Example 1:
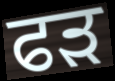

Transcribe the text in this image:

ਫੜ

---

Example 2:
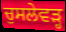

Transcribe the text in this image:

ਚੁਸਲੇਵੜ੍ਹ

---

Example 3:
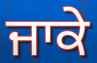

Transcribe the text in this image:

ਜਾਕੇ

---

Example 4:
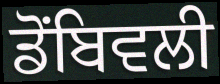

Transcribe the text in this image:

ਡੋਂਬਿਵਲੀ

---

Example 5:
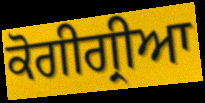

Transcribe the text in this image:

ਕੋਗੀਗ੍ਰੀਆ